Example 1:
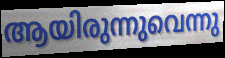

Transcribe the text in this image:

ആയിരുന്നുവെന്നു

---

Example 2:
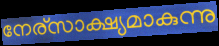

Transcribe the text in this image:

നേര്സാക്ഷ്യമാകുന്നു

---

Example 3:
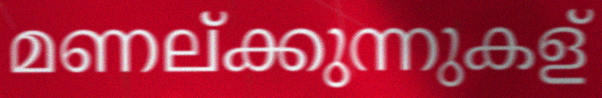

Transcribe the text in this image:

മണല്ക്കുന്നുകള്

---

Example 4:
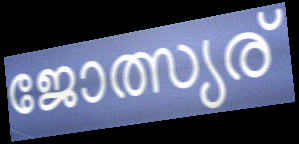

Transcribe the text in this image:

ജോത്സ്യര്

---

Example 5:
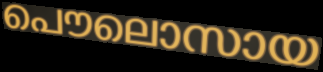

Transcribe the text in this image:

പൌലൊസായ